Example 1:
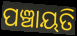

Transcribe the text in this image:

ପଞ୍ଚାୟତି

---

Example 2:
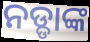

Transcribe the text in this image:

ନଡ୍ଡାଙ୍କ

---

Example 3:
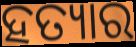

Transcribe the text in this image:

ହତ୍ୟାର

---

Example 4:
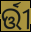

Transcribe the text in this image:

ର୍ତ୍ତୀ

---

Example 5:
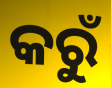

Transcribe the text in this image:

କରୁଁ